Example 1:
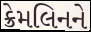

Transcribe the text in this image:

ક્રેમલિનને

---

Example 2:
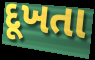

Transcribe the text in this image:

દૂખતા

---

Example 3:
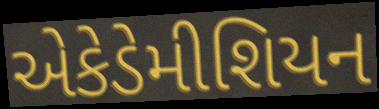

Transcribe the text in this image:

એકેડેમીશિયન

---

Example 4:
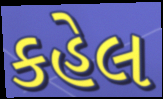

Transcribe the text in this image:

કહેલ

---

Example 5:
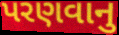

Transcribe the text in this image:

પરણવાનુ